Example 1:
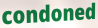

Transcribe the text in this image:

condoned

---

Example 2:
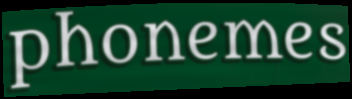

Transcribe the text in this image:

phonemes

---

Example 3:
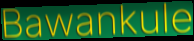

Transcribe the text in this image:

Bawankule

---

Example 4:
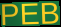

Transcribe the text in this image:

PEB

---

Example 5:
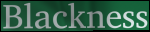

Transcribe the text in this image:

Blackness